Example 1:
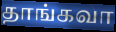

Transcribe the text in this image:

தாங்கவா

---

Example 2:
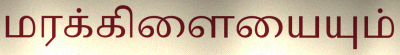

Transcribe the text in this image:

மரக்கிளையையும்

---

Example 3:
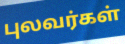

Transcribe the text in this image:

புலவர்கள்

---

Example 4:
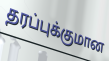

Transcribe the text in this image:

தரப்புக்குமான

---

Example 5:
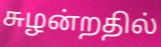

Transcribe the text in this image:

சுழன்றதில்